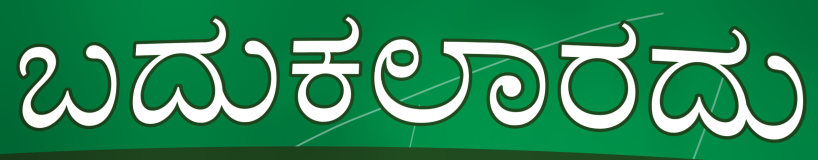
ಬದುಕಲಾರದು